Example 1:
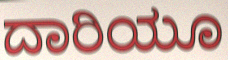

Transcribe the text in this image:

ದಾರಿಯೂ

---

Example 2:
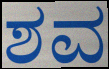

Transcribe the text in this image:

ಶವ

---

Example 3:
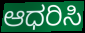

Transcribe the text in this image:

ಆಧರಿಸಿ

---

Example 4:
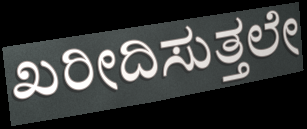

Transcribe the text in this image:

ಖರೀದಿಸುತ್ತಲೇ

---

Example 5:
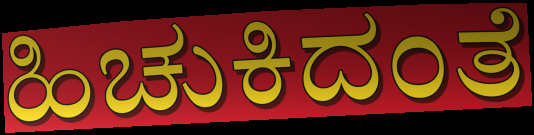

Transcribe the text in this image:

ಹಿಚುಕಿದಂತೆ